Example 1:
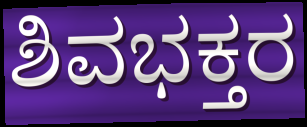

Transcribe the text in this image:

ಶಿವಭಕ್ತರ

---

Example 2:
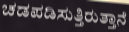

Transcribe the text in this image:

ಚಡಪಡಿಸುತ್ತಿರುತ್ತಾನೆ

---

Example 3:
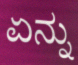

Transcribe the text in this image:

ಏನ್ನು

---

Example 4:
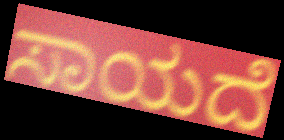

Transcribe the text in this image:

ಸಾಯದೆ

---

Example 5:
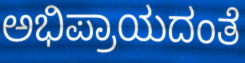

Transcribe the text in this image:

ಅಭಿಪ್ರಾಯದಂತೆ